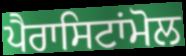
ਪੈਰਾਸਿਟਾਂਮੋਲ